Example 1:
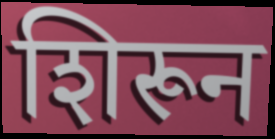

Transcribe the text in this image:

शिरून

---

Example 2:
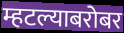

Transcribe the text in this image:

म्हटल्याबरोबर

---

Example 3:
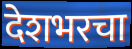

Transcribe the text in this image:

देशभरचा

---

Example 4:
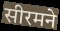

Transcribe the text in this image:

सीरमने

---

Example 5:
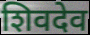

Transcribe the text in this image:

शिवदेव